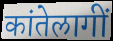
कांतेलागीं